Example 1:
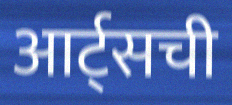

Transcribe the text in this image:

आर्ट्सची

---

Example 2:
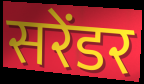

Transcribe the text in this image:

सरेंडर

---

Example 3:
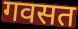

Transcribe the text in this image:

गवसत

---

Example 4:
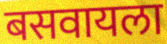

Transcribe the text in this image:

बसवायला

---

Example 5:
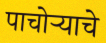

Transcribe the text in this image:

पाचोऱ्याचे